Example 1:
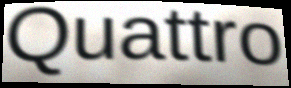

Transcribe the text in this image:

Quattro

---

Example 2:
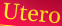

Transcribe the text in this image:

Utero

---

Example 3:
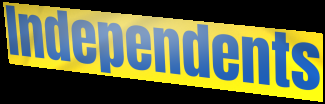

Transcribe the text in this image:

Independents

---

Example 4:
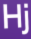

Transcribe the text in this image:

Hj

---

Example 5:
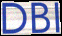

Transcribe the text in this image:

DBI